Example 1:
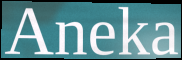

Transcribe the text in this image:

Aneka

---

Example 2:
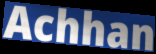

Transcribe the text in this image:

Achhan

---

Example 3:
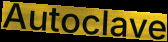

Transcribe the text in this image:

Autoclave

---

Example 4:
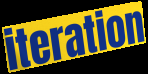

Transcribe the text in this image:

iteration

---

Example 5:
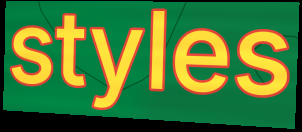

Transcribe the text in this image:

styles